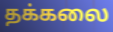
தக்கலை